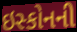
ઇસ્કોનની